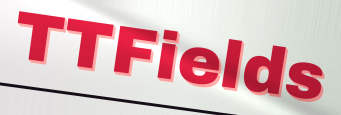
TTFields